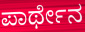
ಪಾರ್ಥೇನ